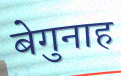
बेगुनाह